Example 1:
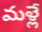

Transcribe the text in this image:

మళ్లే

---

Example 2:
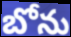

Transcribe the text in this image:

బోను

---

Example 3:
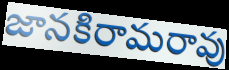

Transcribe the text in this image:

జానకిరామరావు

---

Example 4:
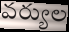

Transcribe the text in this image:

వర్యుల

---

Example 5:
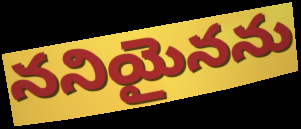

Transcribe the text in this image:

ననియైనను